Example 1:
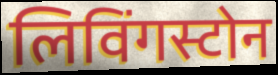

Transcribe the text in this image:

लिविंगस्टोन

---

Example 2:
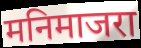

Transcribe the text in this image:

मनिमाजरा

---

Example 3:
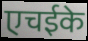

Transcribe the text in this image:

एचईके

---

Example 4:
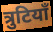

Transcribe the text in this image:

त्रुटियाँ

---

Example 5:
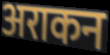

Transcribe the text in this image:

अराकन